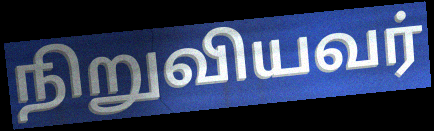
நிறுவியவர்